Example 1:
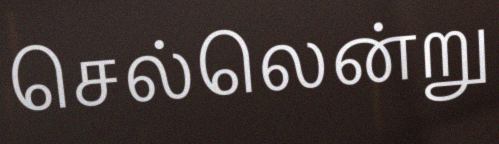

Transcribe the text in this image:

செல்லென்று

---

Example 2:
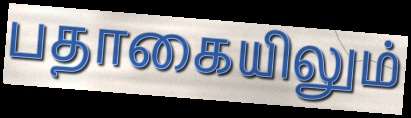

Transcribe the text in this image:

பதாகையிலும்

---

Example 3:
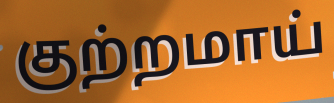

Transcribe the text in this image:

குற்றமாய்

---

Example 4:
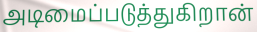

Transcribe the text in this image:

அடிமைப்படுத்துகிறான்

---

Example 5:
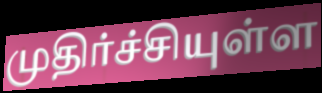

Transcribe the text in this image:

முதிர்ச்சியுள்ள